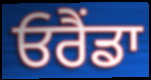
ਓਰੈਂਡਾ